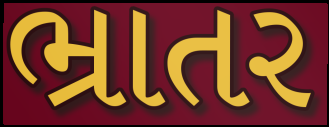
ભ્રાતર